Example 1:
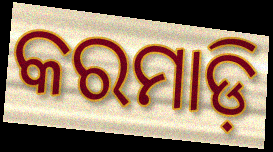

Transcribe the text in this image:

କରମାଡ଼ି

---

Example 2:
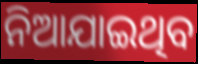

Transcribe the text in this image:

ନିଆଯାଇଥିବ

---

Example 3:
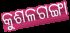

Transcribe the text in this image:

କୁଶଳଗଙ୍ଗା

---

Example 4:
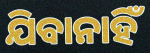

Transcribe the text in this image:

ଯିବାନାହିଁ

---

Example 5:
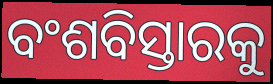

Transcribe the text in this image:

ବଂଶବିସ୍ତାରକୁ